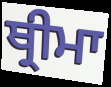
ਥ੍ਰੀਮਾ